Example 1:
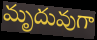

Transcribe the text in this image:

మృదువుగా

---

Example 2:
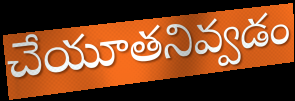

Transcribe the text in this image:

చేయూతనివ్వడం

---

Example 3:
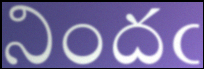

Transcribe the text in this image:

నిందఁ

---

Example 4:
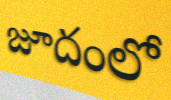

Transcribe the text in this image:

జూదంలో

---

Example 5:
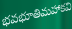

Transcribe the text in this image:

భవభూతిమహాకవి